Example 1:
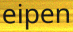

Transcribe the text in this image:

eipen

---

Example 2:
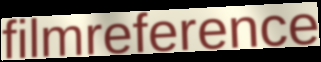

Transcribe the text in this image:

filmreference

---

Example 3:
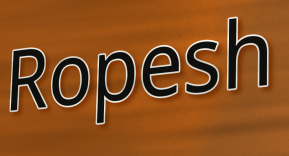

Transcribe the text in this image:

Ropesh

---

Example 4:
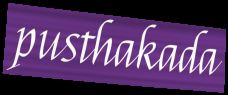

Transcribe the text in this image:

pusthakada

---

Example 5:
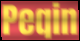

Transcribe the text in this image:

Peqin